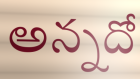
అన్నదో